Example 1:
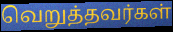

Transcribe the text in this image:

வெறுத்தவர்கள்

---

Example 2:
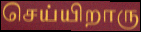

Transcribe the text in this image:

செய்யிறாரு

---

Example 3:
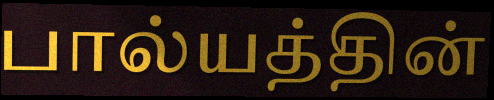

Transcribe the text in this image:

பால்யத்தின்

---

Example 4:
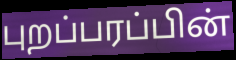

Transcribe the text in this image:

புறப்பரப்பின்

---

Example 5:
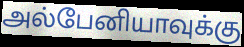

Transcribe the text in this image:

அல்பேனியாவுக்கு